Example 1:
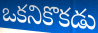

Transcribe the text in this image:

ఒకనికొకడు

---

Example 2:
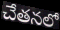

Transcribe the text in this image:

చేతనలో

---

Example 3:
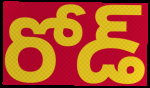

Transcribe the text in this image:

రోడ్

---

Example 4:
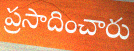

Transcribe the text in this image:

ప్రసాదించారు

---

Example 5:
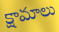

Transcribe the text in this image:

క్షామాలు